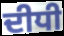
ਦੀਧੀ